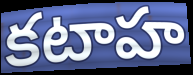
కటాహ